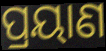
ପ୍ରୟାଣ